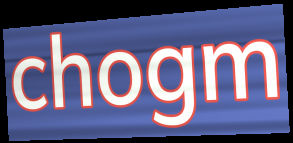
chogm